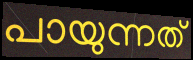
പായുന്നത്